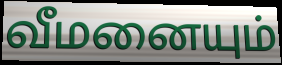
வீமனையும்